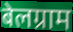
बेलग्राम